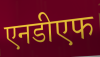
एनडीएफ